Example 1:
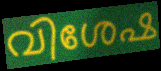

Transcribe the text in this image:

വിശേഷ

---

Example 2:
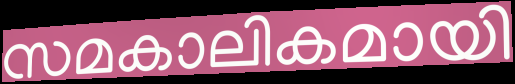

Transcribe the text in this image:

സമകാലികമായി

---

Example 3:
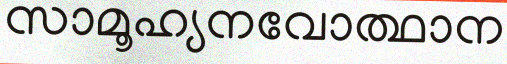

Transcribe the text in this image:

സാമൂഹ്യനവോത്ഥാന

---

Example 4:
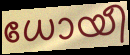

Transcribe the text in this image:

ധോയീ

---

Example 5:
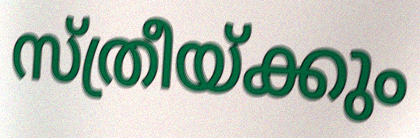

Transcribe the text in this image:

സ്ത്രീയ്ക്കും